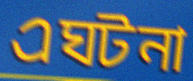
এঘটনা